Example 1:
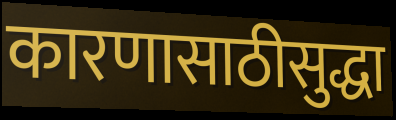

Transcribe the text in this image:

कारणासाठीसुद्धा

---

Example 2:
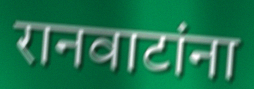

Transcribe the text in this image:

रानवाटांना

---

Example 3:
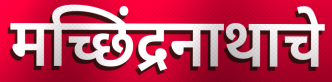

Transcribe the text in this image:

मच्छिंद्रनाथाचे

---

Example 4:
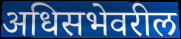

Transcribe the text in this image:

अधिसभेवरील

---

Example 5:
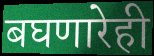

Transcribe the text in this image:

बघणारेही